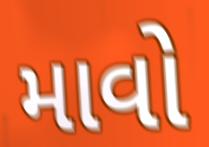
માવો